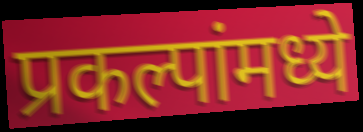
प्रकल्पांमध्ये